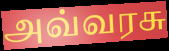
அவ்வரசு